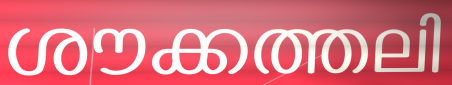
ശൗക്കത്തലി